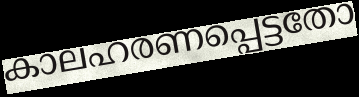
കാലഹരണപ്പെട്ടതോ